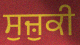
ਸੁਜ਼ੁਕੀ